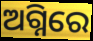
ଅଗ୍ନିରେ